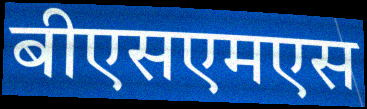
बीएसएमएस